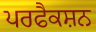
ਪਰਫੈਕਸ਼ਨ